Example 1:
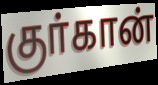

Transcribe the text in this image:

குர்கான்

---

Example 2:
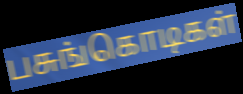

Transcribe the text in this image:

பசுங்கொடிகள்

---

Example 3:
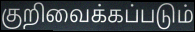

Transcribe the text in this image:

குறிவைக்கப்படும்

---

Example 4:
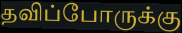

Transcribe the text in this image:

தவிப்போருக்கு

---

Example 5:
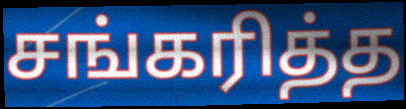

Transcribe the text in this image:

சங்கரித்த